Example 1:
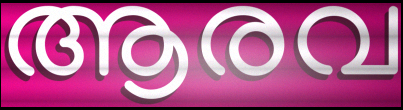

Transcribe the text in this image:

ആരവ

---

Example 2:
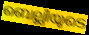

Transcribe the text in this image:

ബെല്ലിയുടെ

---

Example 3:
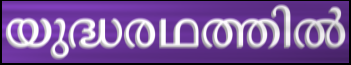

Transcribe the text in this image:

യുദ്ധരഥത്തിൽ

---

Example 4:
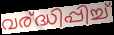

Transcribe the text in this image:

വര്ദ്ധിപ്പിച്ച്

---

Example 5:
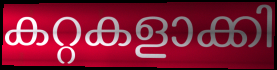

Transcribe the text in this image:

കറ്റകളാക്കി